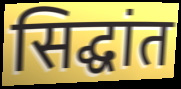
सिद्घांत